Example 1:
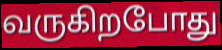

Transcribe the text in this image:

வருகிறபோது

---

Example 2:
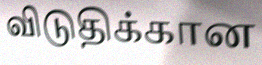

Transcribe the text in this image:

விடுதிக்கான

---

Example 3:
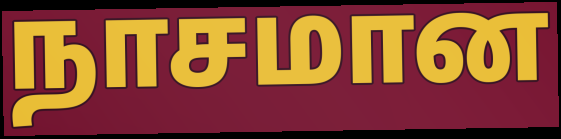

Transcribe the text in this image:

நாசமான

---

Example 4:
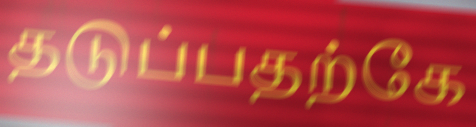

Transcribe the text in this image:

தடுப்பதற்கே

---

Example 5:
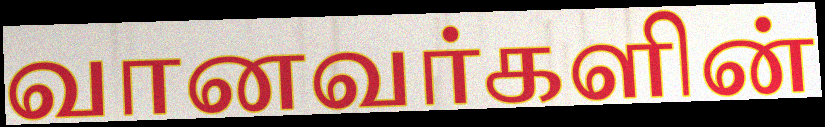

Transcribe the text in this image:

வானவர்களின்